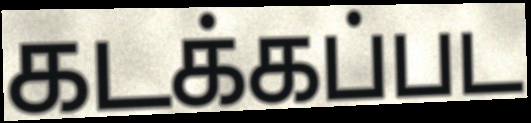
கடக்கப்பட